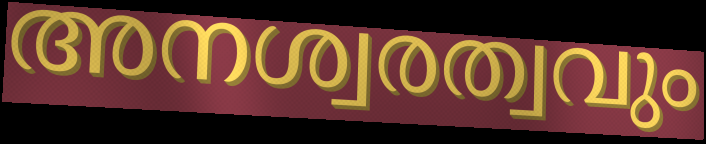
അനശ്വരത്വവും